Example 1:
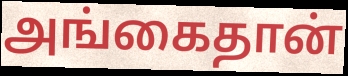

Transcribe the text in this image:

அங்கைதான்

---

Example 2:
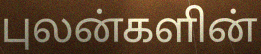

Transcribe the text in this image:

புலன்களின்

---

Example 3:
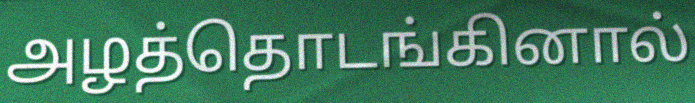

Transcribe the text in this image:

அழத்தொடங்கினால்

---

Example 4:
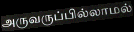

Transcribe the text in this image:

அருவருப்பில்லாமல்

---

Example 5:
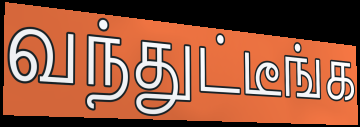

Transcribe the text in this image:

வந்துட்டீங்க